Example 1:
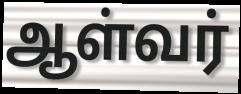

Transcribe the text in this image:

ஆள்வர்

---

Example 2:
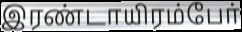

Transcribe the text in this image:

இரண்டாயிரம்பேர்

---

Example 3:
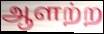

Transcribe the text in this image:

ஆளற்ற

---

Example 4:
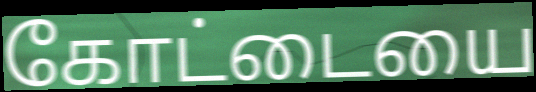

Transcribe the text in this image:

கோட்டையை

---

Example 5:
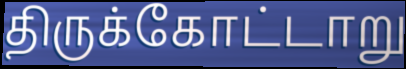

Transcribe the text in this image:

திருக்கோட்டாறு